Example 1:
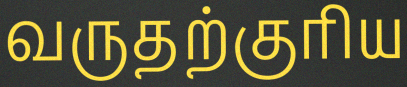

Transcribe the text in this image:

வருதற்குரிய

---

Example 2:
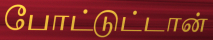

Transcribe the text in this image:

போட்டுட்டான்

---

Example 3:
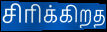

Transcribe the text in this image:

சிரிக்கிறத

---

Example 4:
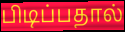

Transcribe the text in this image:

பிடிப்பதால்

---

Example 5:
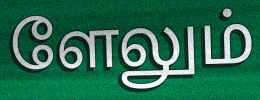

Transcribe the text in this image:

ளேலும்